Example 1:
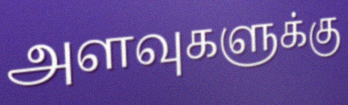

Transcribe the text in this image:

அளவுகளுக்கு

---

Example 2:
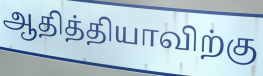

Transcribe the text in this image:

ஆதித்தியாவிற்கு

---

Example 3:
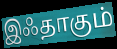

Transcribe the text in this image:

இஃதாகும்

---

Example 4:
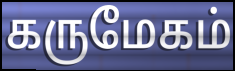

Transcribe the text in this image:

கருமேகம்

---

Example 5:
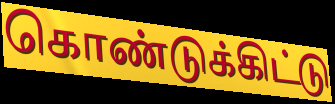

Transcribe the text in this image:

கொண்டுக்கிட்டு